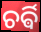
ଚର୍ଵି